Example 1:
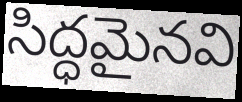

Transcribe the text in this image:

సిద్ధమైనవి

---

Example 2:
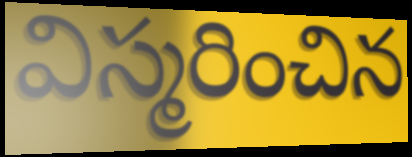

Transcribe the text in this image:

విస్మరించిన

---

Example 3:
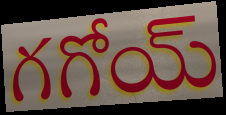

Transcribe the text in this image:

గగోయ్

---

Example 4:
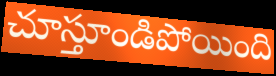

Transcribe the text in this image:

చూస్తూండిపోయింది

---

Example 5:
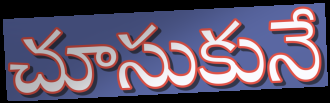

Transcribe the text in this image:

చూసుకునే